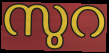
സുറ